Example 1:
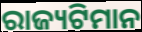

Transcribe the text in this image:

ରାଜ୍ୟଟିମାନ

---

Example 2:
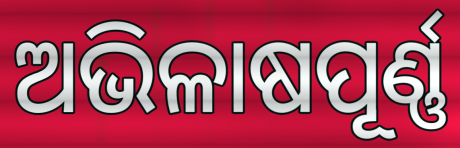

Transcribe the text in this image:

ଅଭିଳାଷପୂର୍ଣ୍ଣ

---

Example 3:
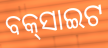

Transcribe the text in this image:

ବକ୍‌ସାଇଟ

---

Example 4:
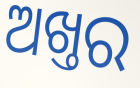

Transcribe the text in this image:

ଅଖ୍ତର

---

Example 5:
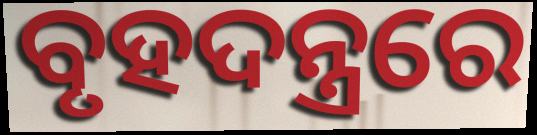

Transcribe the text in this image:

ବୃହଦନ୍ତ୍ରରେ